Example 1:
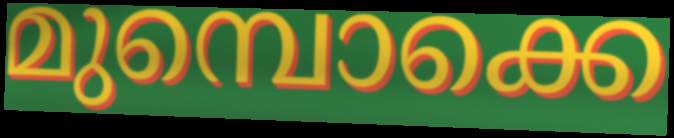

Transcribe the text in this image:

മുമ്പൊക്കെ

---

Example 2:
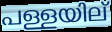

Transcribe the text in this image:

പള്ളയില്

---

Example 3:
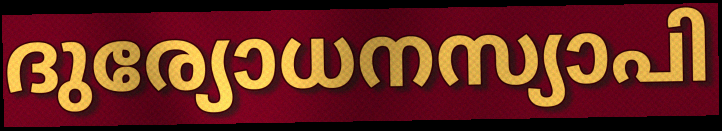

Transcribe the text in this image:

ദുര്യോധനസ്യാപി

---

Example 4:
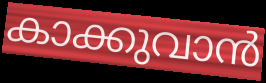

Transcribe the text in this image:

കാക്കുവാൻ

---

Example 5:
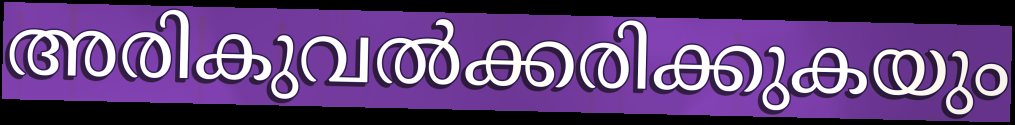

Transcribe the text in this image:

അരികുവൽക്കരിക്കുകയും